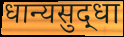
धान्यसुद्धा